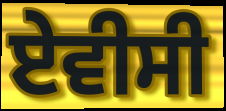
ਏਵੀਸੀ